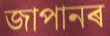
জাপানৰ